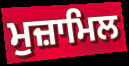
ਮੁਜ਼ਾਮਿਲ